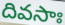
దివసాః